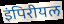
इंपिरीयल